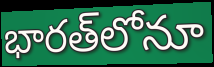
భారత్‌లోనూ